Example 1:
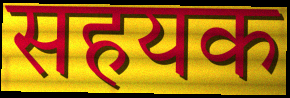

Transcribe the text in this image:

सहयक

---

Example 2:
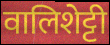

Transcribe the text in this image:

वालिशेट्टी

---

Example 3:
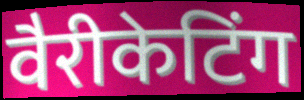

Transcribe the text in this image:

वैरीकेटिंग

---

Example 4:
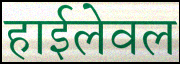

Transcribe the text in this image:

हाईलेवल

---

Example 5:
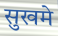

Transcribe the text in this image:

सुखमे